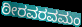
ಠೀರವರವಮಂ